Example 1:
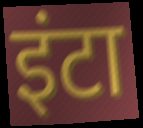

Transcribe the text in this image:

इंटा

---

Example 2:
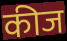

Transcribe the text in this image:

कीज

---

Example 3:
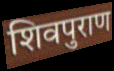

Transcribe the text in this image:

शिवपुराण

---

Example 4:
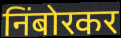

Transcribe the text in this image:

निंबोरकर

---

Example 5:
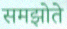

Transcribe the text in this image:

समझोते